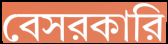
বেসরকারি